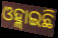
ଓହ୍ଲାଇଛି